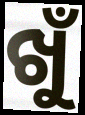
ଖୁଁ